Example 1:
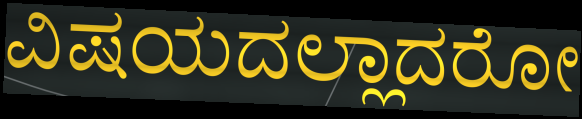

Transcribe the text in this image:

ವಿಷಯದಲ್ಲಾದರೋ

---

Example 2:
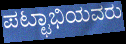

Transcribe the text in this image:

ಪಟ್ಟಾಭಿಯವರು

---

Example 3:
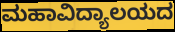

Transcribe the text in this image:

ಮಹಾವಿದ್ಯಾಲಯದ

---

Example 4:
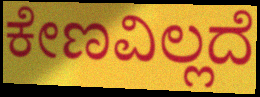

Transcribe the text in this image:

ಕೇಣವಿಲ್ಲದೆ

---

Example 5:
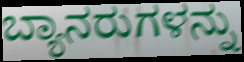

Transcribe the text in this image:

ಬ್ಯಾನರುಗಳನ್ನು